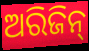
ଅରିଜିନ୍